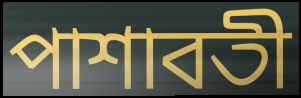
পাশাবতী